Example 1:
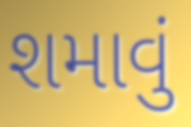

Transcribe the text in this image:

શમાવું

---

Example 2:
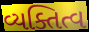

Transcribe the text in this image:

વ્યક્તિત્વ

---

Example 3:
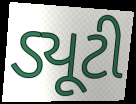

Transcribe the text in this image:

ડ્યૂટી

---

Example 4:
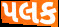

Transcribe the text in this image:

પલક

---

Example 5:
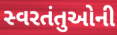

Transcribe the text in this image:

સ્વરતંતુઓની